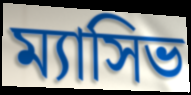
ম্যাসিভ